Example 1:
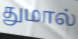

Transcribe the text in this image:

துமால்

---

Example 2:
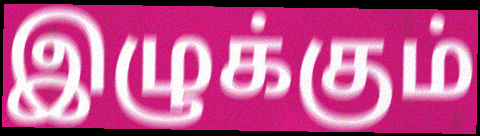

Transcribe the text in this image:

இழுக்கும்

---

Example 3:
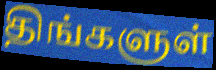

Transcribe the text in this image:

திங்களுள்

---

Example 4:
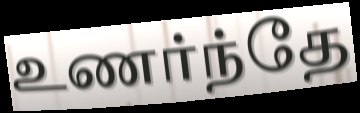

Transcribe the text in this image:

உணர்ந்தே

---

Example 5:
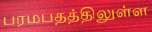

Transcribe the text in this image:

பரமபதத்திலுள்ள